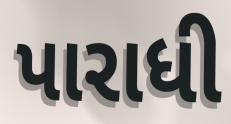
પારાધી